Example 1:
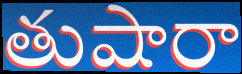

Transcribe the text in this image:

తుషారా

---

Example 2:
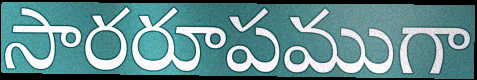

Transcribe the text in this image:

సారరూపముగా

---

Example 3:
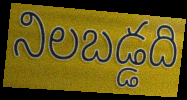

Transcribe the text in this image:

నిలబడ్డది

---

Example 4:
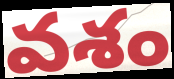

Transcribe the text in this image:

వశం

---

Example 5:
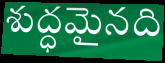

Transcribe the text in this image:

శుద్ధమైనది